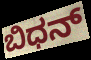
ಬಿಧನ್